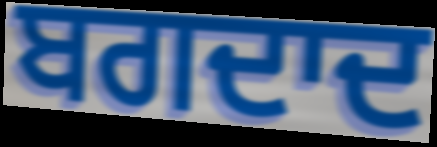
ਬਗਦਾਦ